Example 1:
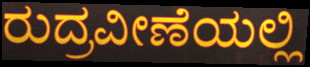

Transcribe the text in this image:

ರುದ್ರವೀಣೆಯಲ್ಲಿ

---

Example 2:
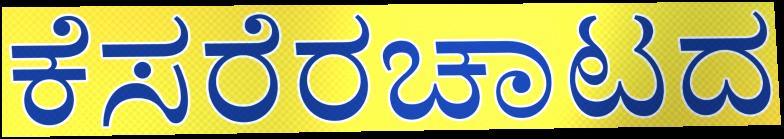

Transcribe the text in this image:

ಕೆಸರೆರಚಾಟದ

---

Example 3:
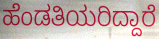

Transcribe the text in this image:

ಹೆಂಡತಿಯರಿದ್ದಾರೆ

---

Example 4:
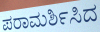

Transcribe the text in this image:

ಪರಾಮರ್ಶಿಸಿದ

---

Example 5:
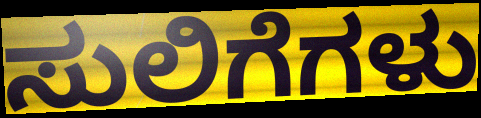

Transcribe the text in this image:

ಸುಲಿಗೆಗಳು